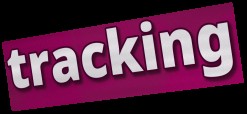
tracking